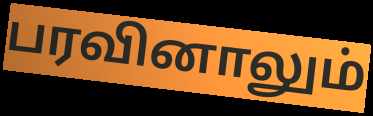
பரவினாலும்